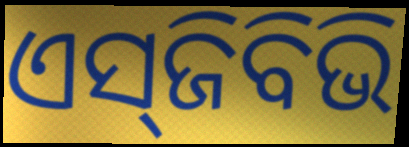
ଏସ୍‌ଜିବିଭି